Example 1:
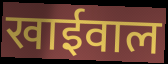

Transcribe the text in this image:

खाईवाल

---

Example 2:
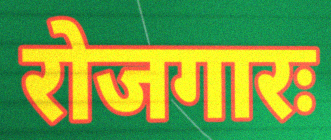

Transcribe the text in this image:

रोजगारः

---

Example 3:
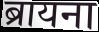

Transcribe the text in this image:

ब्रायना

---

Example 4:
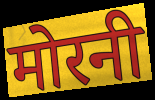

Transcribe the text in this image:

मोरनी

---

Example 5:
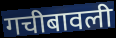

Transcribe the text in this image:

गचीबावली